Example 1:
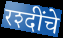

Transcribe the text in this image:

रश्दींचे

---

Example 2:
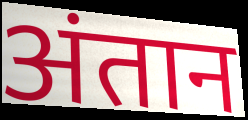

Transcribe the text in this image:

अंतान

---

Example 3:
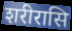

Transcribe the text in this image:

शरीरासि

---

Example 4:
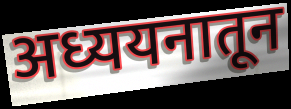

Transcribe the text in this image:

अध्ययनातून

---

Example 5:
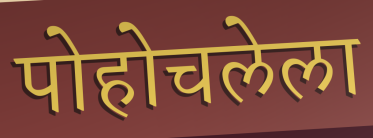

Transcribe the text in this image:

पोहोचलेला